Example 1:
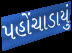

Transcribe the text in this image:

પહોંચાડાયું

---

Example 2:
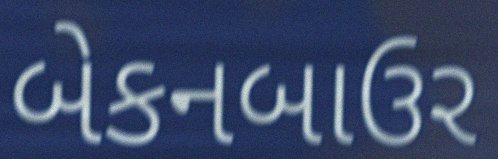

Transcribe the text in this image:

બેકનબાઉર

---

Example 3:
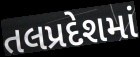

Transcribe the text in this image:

તલપ્રદેશમાં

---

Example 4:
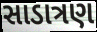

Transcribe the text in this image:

સાડાત્રણ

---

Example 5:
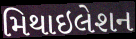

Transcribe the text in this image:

મિથાઇલેશન